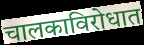
चालकाविरोधात